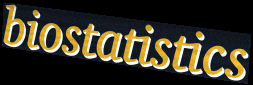
biostatistics